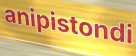
anipistondi